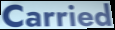
Carried